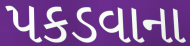
પકડવાના